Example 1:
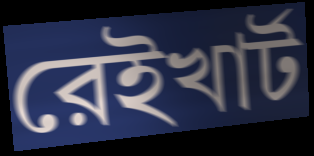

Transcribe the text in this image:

রেইখার্ট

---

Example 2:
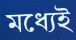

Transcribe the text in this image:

মধ্যেই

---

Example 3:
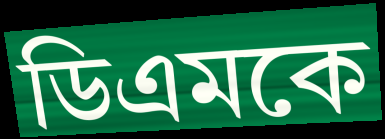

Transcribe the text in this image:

ডিএমকে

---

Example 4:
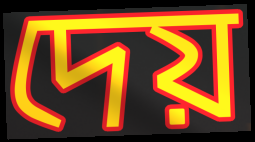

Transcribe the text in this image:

দেয়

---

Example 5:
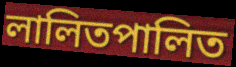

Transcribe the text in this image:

লালিতপালিত